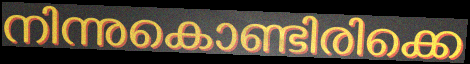
നിന്നുകൊണ്ടിരിക്കെ